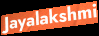
Jayalakshmi